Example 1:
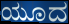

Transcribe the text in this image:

ಯೂದ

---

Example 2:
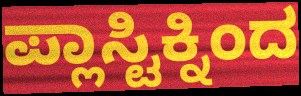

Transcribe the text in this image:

ಪ್ಲಾಸ್ಟಿಕ್ನಿಂದ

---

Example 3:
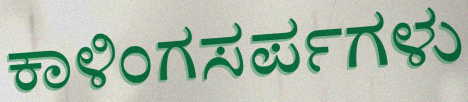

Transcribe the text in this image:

ಕಾಳಿಂಗಸರ್ಪಗಳು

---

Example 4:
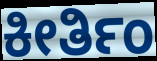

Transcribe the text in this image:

ಕೀರ್ತಿಂ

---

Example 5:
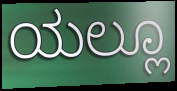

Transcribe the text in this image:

ಯಲ್ಲೂ